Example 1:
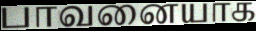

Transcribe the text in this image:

பாவனையாக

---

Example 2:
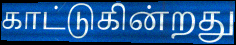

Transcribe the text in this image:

காட்டுகின்றது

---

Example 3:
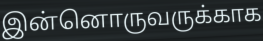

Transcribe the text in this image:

இன்னொருவருக்காக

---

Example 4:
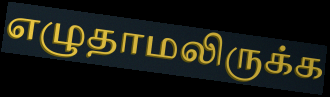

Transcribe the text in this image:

எழுதாமலிருக்க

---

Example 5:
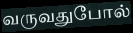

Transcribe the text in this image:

வருவதுபோல்